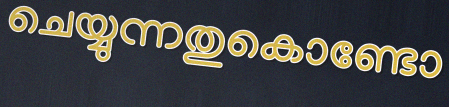
ചെയ്യുന്നതുകൊണ്ടോ